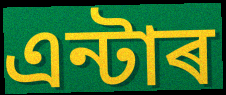
এন্টাৰ